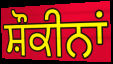
ਸ਼ੌਕੀਨਾਂ